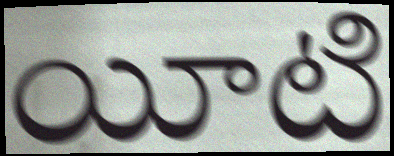
యీటి